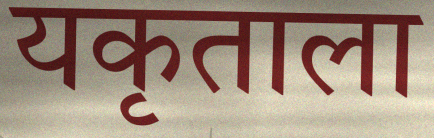
यकृताला